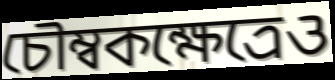
চৌম্বকক্ষেত্রেও